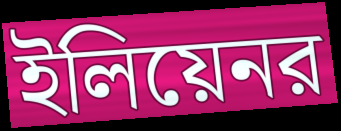
ইলিয়েনর